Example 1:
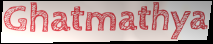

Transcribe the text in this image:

Ghatmathya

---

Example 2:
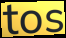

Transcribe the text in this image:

tos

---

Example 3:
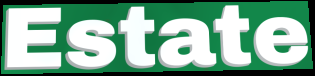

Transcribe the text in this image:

Estate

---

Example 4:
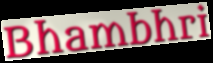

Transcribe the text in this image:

Bhambhri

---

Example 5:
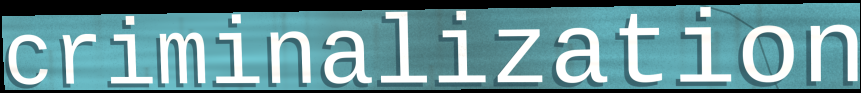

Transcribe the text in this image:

criminalization